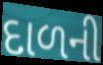
દાળની